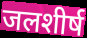
जलशीर्ष